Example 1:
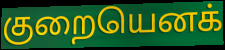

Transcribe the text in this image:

குறையெனக்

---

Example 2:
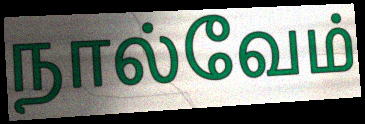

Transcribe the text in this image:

நால்வேம்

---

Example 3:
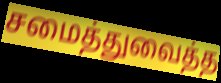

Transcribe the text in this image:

சமைத்துவைத்த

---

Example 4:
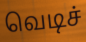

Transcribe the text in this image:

வெடிச்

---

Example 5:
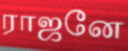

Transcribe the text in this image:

ராஜனே